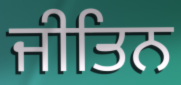
ਜੀਤਿਨ